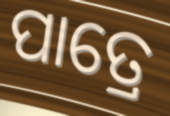
ପାତ୍ରେ